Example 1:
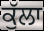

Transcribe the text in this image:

ਕੁੱਲਾ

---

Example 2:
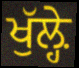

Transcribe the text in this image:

ਖੁੱਲ਼੍ਹੇ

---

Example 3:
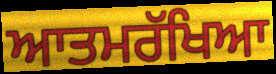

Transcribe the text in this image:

ਆਤਮਰੱਖਿਆ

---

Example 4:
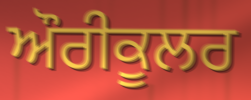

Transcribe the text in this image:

ਔਰੀਕੂਲਰ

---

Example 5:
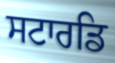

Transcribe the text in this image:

ਸਟਾਰਡਿ